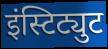
इंस्टिट्युट